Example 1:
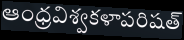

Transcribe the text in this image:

ఆంధ్రవిశ్వకళాపరిషత్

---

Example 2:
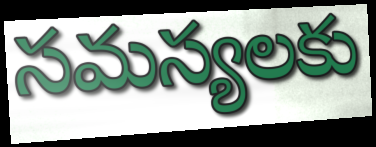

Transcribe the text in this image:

సమస్యలకు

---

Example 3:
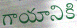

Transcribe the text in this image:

గాయానికి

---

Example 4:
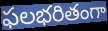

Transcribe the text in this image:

ఫలభరితంగా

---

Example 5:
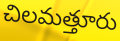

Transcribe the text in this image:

చిలమత్తూరు